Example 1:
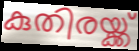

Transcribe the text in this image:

കുതിരയ്ക്ക്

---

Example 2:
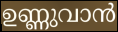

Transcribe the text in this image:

ഉണ്ണുവാൻ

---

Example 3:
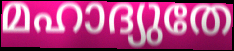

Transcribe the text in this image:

മഹാദ്യുതേ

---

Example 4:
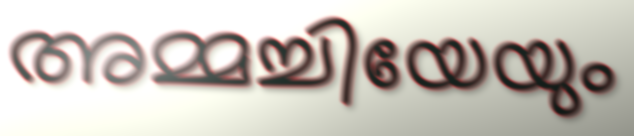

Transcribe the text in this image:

അമ്മച്ചിയേയും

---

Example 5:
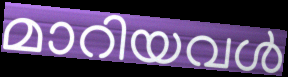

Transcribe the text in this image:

മാറിയവൾ